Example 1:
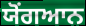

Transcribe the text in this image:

ਯੋਂਗਆਨ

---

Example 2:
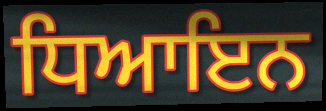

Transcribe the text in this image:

ਧਿਆਇਨ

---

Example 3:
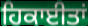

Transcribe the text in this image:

ਹਿਕਾਈਤਾਂ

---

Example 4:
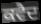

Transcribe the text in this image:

ਕਵੈਦ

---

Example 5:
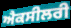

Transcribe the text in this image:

ਐਕਸੀਲਰੀ